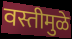
वस्तीमुळे